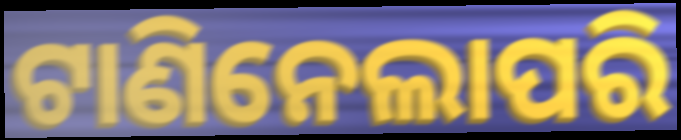
ଟାଣିନେଲାପରି